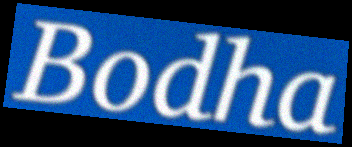
Bodha